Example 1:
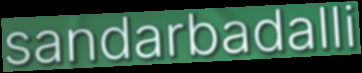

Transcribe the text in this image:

sandarbadalli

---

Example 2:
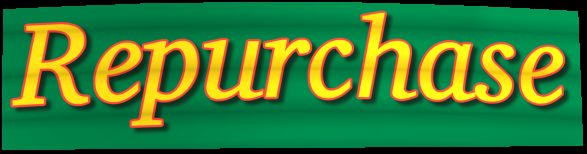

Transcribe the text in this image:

Repurchase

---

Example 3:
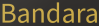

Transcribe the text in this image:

Bandara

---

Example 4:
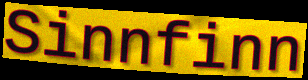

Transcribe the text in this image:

Sinnfinn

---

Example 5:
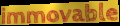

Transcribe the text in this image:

immovable